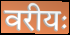
वरीयः